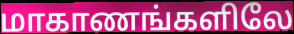
மாகாணங்களிலே